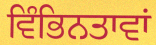
ਵਿੰਭਿਨਤਾਵਾਂ